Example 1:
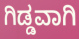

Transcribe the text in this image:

ಗಿಡ್ಡವಾಗಿ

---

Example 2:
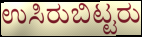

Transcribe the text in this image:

ಉಸಿರುಬಿಟ್ಟರು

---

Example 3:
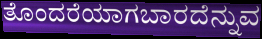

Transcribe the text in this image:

ತೊಂದರೆಯಾಗಬಾರದೆನ್ನುವ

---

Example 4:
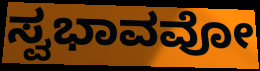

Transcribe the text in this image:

ಸ್ವಭಾವವೋ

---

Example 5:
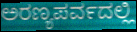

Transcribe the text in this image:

ಅರಣ್ಯಪರ್ವದಲ್ಲಿ